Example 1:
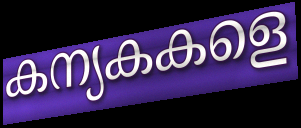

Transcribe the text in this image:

കന്യകകളെ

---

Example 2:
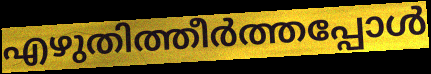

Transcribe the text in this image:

എഴുതിത്തീർത്തപ്പോൾ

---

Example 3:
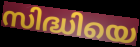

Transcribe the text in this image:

സിദ്ധിയെ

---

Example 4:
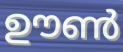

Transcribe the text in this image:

ഊൺ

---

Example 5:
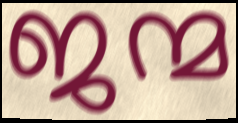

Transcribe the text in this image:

ജന്മ